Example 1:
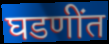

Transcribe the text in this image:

घडणींत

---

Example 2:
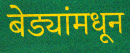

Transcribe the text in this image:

बेड्यांमधून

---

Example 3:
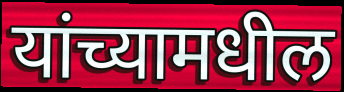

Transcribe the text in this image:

यांच्यामधील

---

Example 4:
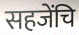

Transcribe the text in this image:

सहजेंचि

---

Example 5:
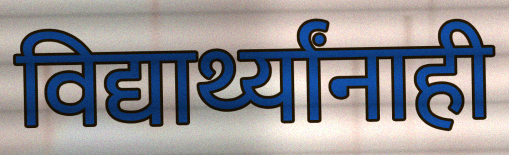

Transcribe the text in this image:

विद्यार्थ्यांनाही